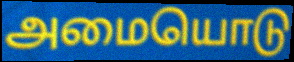
அமையொடு